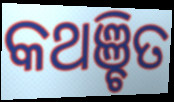
କଥଞ୍ଚିତ